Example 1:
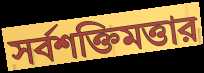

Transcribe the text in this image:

সর্বশক্তিমত্তার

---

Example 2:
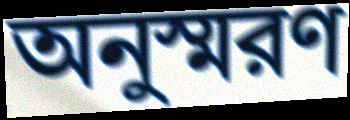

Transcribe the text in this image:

অনুস্মরণ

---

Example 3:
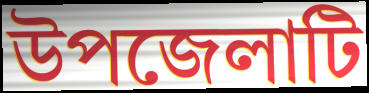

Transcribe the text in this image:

উপজেলাটি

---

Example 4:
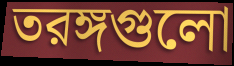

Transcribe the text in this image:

তরঙ্গগুলো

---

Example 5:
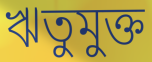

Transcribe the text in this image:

ঋতুমুক্ত